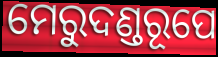
ମେରୁଦଣ୍ଡରୂପେ